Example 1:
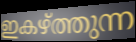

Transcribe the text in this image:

ഇകഴ്ത്തുന്ന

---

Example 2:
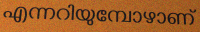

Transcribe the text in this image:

എന്നറിയുമ്പോഴാണ്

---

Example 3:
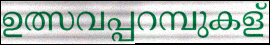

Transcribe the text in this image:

ഉത്സവപ്പറമ്പുകള്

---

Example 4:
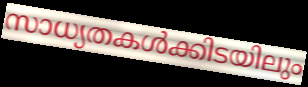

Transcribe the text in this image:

സാധ്യതകൾക്കിടയിലും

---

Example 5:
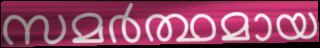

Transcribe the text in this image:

സമർത്ഥമായ